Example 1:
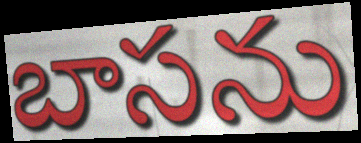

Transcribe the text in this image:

బాసను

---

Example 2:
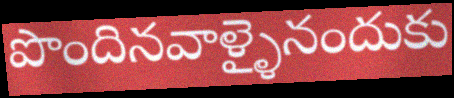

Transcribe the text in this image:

పొందినవాళ్ళైనందుకు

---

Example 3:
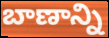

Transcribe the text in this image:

బాణాన్ని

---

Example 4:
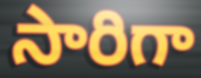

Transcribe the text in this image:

సారిగా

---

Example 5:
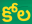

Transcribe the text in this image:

కోల